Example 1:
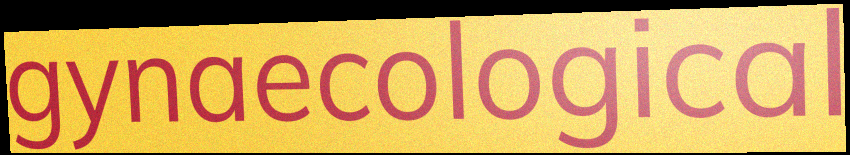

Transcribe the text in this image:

gynaecological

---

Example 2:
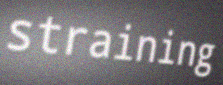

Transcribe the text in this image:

straining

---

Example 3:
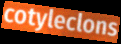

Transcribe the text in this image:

cotyleclons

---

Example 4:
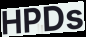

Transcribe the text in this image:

HPDs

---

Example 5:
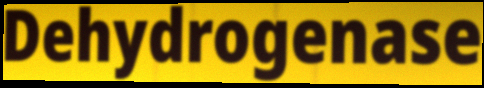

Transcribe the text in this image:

Dehydrogenase